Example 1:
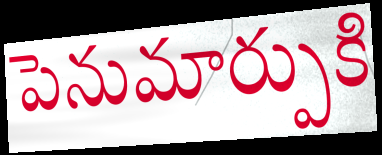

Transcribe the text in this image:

పెనుమార్పుకి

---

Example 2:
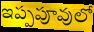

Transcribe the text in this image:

ఇప్పపూవులో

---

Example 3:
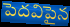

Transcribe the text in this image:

పెదవిపైన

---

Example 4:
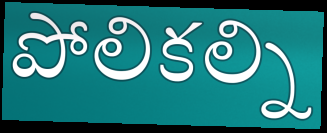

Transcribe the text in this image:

పోలికల్ని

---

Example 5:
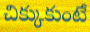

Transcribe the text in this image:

చిక్కుకుంటే